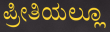
ಪ್ರೀತಿಯಲ್ಲೂ